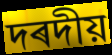
দৰদীয়